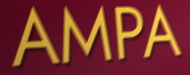
AMPA